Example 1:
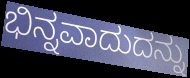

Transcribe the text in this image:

ಭಿನ್ನವಾದುದನ್ನು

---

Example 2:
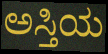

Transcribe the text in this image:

ಅಸ್ತಿಯ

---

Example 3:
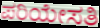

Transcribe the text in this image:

ಪರಿಯೇಸತಿ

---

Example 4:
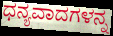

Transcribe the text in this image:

ಧನ್ಯವಾದಗಳನ್ನ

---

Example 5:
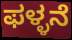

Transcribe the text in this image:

ಫಳ್ಳನೆ